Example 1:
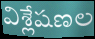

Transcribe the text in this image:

విశ్లేషణల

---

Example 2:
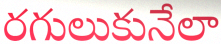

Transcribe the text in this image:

రగులుకునేలా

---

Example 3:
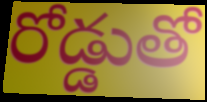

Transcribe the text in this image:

రోడ్డుతో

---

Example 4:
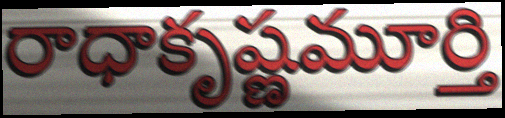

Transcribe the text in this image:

రాధాకృష్ణమూర్తి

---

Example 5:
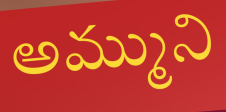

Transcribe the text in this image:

అమ్ముని